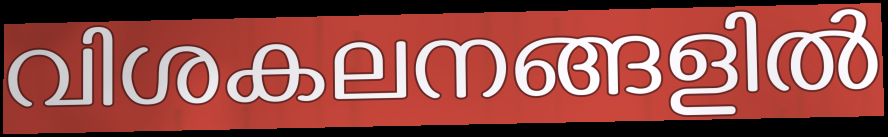
വിശകലനങ്ങളിൽ